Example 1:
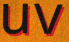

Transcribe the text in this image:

uv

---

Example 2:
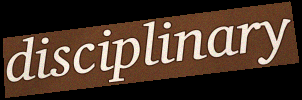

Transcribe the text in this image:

disciplinary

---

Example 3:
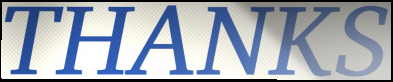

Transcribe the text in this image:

THANKS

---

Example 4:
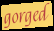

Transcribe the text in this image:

gorged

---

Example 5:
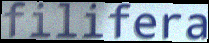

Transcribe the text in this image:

filifera